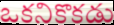
ఒకనికొకడు